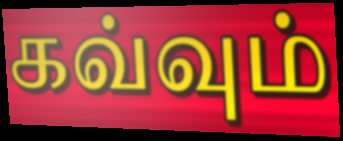
கவ்வும்